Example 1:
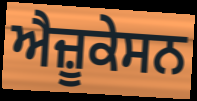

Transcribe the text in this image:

ਐਜ਼ੂਕੇਸਨ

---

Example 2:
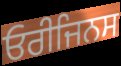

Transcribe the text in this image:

ਓਰੀਜਿਨਸ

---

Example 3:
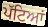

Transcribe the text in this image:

ਪੱਟਿਆਂ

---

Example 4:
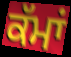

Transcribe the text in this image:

ਕੱਮਾਂ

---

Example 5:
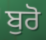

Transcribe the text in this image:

ਬੁਰੋ